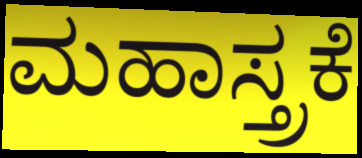
ಮಹಾಸ್ತ್ರಕೆ